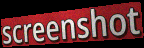
screenshot